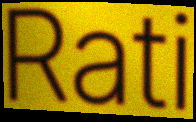
Rati